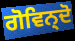
ਗੋਵਿਨ੍ਦੋ